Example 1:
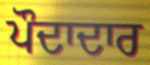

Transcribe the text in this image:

ਪੌਦਾਦਾਰ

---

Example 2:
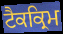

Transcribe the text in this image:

ਟੈਕਕ੍ਰਿਮ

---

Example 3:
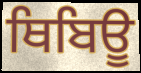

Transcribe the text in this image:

ਥਿਬਿਊ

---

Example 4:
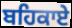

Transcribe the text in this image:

ਬਹਿਕਾਏ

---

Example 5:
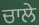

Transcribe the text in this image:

ਚਾਲੇ